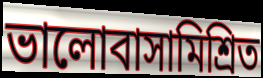
ভালোবাসামিশ্রিত